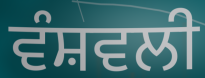
ਵੰਸ਼ਵਲੀ